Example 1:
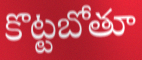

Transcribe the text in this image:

కొట్టబోతూ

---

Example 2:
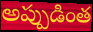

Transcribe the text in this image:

అప్పుడింత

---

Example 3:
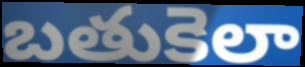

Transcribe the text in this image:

బతుకెలా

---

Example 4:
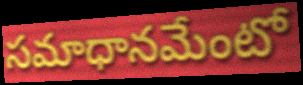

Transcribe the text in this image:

సమాధానమేంటో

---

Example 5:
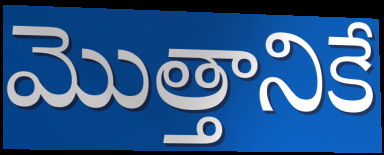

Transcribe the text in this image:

మొత్తానికే